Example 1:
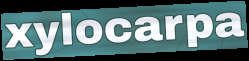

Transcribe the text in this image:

xylocarpa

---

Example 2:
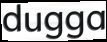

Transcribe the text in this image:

dugga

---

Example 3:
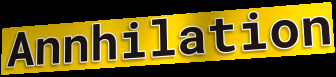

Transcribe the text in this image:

Annhilation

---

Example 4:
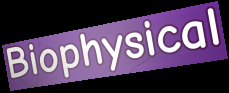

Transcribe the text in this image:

Biophysical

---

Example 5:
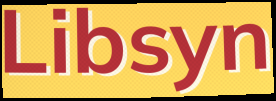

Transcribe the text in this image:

Libsyn